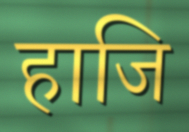
हाजि